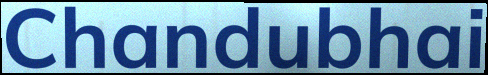
Chandubhai